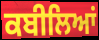
ਕਬੀਲਿਆਂ